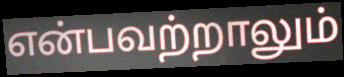
என்பவற்றாலும்